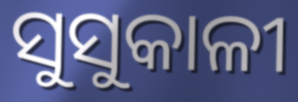
ସୁସୁକାଳୀ